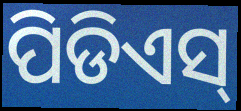
ପିଡିଏସ୍